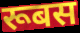
रूबस